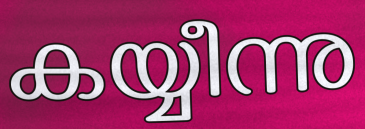
കയ്യീന്നു